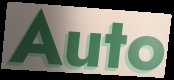
Auto